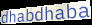
dhabdhaba